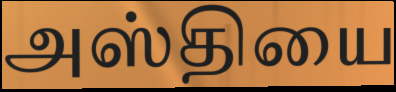
அஸ்தியை